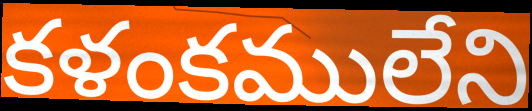
కళంకములేని